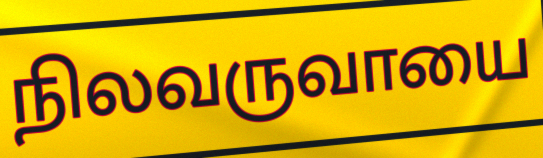
நிலவருவாயை